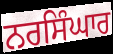
ਨਰਸਿੰਘਾਰ